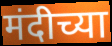
मंदीच्या